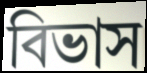
বিভাস